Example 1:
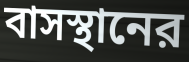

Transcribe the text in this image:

বাসস্থানের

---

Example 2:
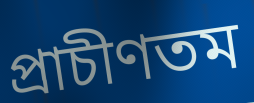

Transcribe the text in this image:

প্রাচীণতম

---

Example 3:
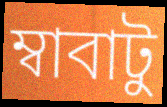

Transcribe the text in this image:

ম্বাবাটু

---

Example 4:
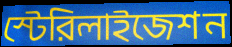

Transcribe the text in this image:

স্টেরিলাইজেশন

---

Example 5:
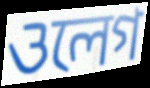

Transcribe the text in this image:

ওলেগ